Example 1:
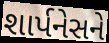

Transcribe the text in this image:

શાર્પનેસને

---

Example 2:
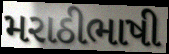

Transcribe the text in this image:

મરાઠીભાષી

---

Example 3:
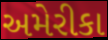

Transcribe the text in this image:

અમેરીકા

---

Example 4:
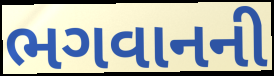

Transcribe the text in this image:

ભગવાનની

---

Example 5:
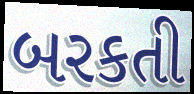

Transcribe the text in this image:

બરકતી